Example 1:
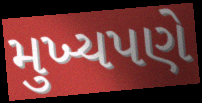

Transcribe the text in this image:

મુખ્યપણે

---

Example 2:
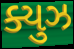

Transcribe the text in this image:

ક્યુઝ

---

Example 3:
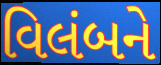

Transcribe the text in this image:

વિલંબને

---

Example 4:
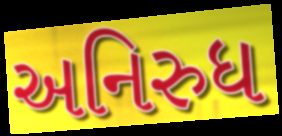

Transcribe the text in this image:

અનિરુધ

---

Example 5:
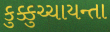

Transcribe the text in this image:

કુક્કુચ્ચાયન્તા